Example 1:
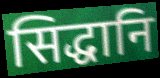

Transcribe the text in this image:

सिद्धानि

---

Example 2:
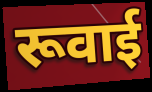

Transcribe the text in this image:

रूवाई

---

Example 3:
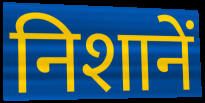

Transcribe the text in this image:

निशानें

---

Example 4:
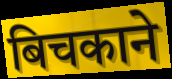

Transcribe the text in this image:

बिचकाने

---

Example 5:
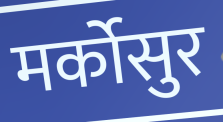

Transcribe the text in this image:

मर्कोसुर